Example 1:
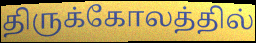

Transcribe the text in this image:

திருக்கோலத்தில்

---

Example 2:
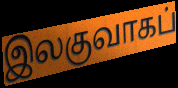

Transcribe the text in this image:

இலகுவாகப்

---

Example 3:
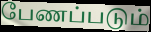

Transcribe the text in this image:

பேணப்படும்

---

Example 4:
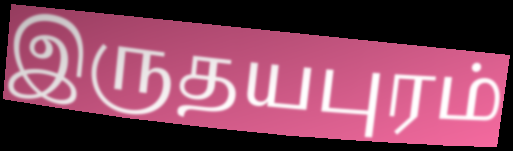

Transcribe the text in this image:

இருதயபுரம்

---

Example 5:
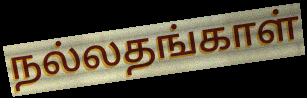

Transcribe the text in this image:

நல்லதங்காள்